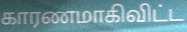
காரணமாகிவிட்ட